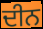
ਦੀਨ